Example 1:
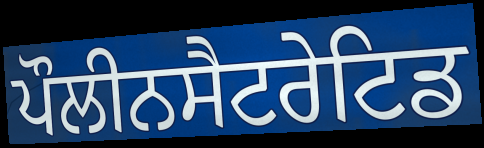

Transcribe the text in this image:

ਪੌਲੀਨਸੈਟਰੇਟਿਡ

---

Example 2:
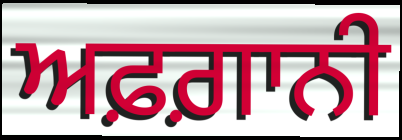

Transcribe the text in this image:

ਅਫ਼ਗ਼ਾਨੀ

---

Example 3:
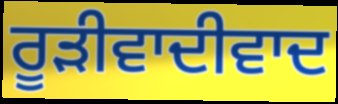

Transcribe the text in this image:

ਰੂੜੀਵਾਦੀਵਾਦ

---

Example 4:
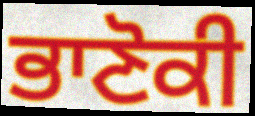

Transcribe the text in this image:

ਭਾਣੋਕੀ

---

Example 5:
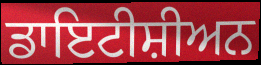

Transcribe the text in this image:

ਡਾਇਟੀਸ਼ੀਅਨ